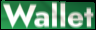
Wallet